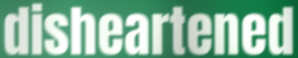
disheartened